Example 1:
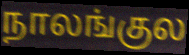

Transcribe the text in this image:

நாலங்குல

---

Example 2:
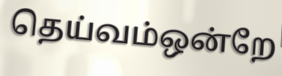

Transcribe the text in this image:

தெய்வம்ஒன்றே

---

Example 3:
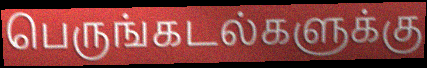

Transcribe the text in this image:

பெருங்கடல்களுக்கு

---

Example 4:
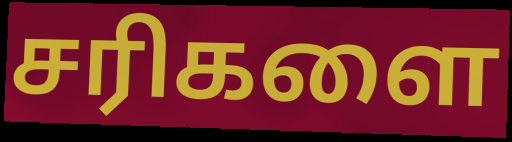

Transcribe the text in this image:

சரிகளை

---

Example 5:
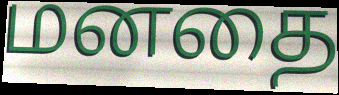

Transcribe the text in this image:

மனதை